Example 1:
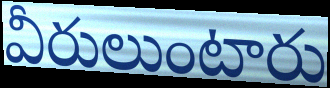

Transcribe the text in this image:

వీరులుంటారు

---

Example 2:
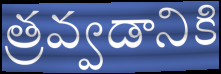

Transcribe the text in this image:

త్రవ్వడానికి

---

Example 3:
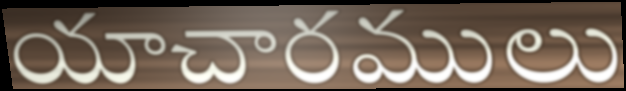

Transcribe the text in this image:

యాచారములు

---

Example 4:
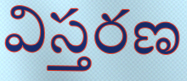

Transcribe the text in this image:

విస్తరణ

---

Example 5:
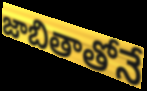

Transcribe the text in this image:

జాబితాతోనే